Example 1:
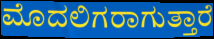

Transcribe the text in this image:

ಮೊದಲಿಗರಾಗುತ್ತಾರೆ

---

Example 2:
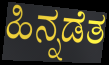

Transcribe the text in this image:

ಹಿನ್ನಡೆತ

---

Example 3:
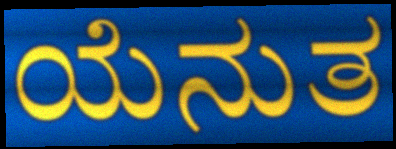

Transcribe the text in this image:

ಯೆನುತ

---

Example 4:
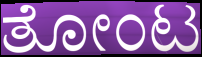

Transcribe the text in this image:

ತೋಂಟ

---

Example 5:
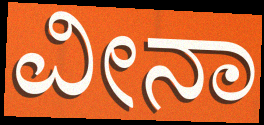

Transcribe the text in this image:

ವೀನಾ